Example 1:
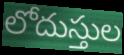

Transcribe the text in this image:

లోదుస్తుల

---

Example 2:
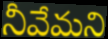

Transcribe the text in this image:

నీవేమని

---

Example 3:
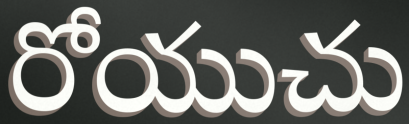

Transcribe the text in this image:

రోయుచు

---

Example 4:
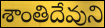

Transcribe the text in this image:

శాంతిదేవుని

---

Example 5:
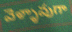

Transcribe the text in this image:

వెళ్ళావుగా